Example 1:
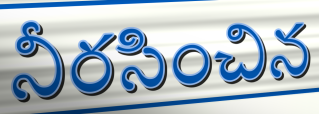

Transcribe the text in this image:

నీరసించిన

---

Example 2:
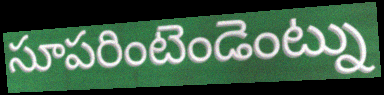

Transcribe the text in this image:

సూపరింటెండెంట్ను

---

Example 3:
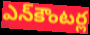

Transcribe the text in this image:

ఎన్‌కౌంటర్ల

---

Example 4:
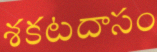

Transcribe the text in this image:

శకటదాసం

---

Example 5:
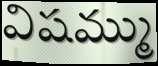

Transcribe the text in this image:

విషమ్ము